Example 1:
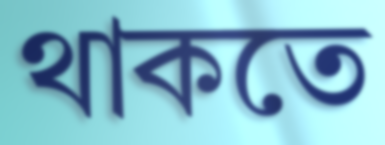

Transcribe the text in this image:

থাকতে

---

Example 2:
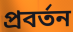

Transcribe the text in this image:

প্রবর্তন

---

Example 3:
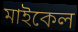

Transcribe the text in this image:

মাইকেল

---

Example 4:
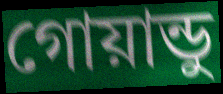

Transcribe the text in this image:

গোয়ান্ডু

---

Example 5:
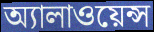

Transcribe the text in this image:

অ্যালাওয়েন্স